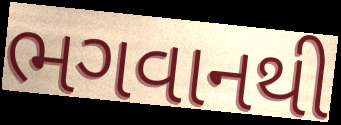
ભગવાનથી